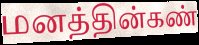
மனத்தின்கண்